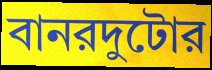
বানরদুটোর